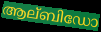
ആല്ബിഡോ